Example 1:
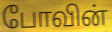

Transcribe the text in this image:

போவின்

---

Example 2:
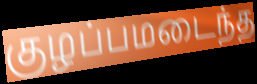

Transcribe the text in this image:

குழப்பமடைந்த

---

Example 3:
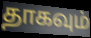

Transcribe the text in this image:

தாகவும்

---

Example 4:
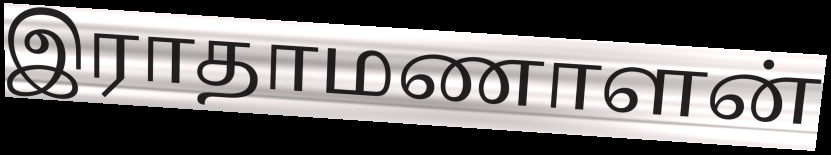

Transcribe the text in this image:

இராதாமணாளன்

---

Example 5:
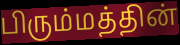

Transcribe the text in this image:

பிரும்மத்தின்